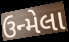
ઉન્મેલા